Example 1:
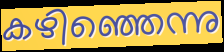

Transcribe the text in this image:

കഴിഞ്ഞെന്നു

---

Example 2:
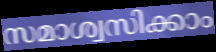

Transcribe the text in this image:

സമാശ്വസിക്കാം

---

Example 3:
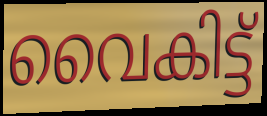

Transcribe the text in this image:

വൈകിട്ട്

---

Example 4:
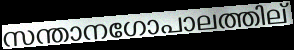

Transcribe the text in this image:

സന്താനഗോപാലത്തില്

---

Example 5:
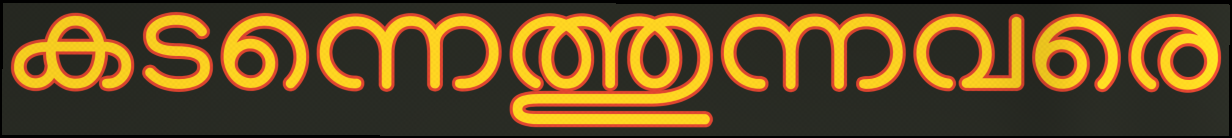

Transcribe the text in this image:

കടന്നെത്തുന്നവരെ